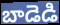
బాడెడి